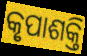
କୃପାଶକ୍ତି